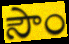
సౌం